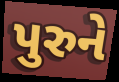
પુરુને